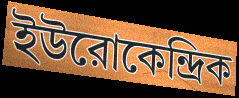
ইউরোকেন্দ্রিক